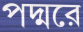
পদ্মরে